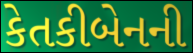
કેતકીબેનની